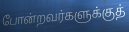
போன்றவர்களுக்குத்